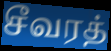
சீவரத்